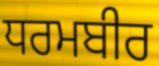
ਧਰਮਬੀਰ